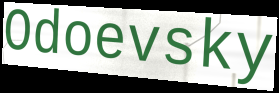
Odoevsky